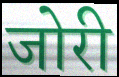
जोरी